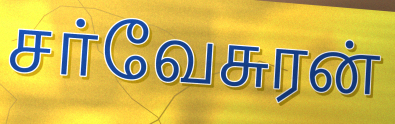
சர்வேசுரன்